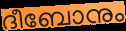
ദീബോനും